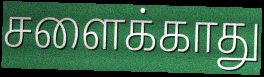
சளைக்காது